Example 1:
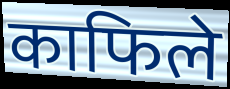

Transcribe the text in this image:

काफिले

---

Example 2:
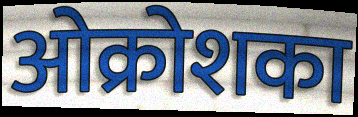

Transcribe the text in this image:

ओक्रोशका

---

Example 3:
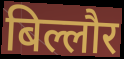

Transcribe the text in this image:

बिल्लौर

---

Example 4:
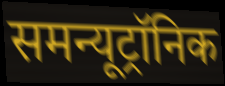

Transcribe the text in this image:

समन्यूट्रॉनिक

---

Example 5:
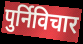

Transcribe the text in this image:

पुर्निविचार